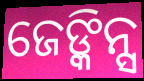
ଜେଙ୍କିନ୍ସ